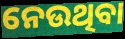
ନେଉଥିବା